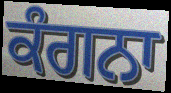
ਕੰਗਨਾ